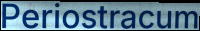
Periostracum